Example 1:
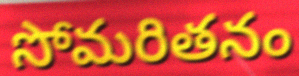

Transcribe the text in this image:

సోమరితనం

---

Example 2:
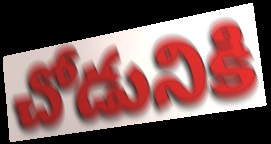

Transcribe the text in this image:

చోడునికి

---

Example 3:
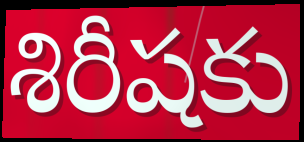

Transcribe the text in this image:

శిరీషకు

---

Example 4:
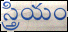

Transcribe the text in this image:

స్త్రియం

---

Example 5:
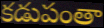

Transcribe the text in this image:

కడుపంతా